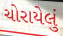
ચોરાયેલું